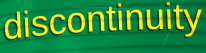
discontinuity